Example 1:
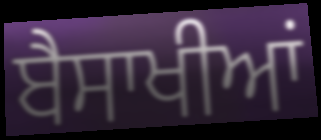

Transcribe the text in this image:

ਬੈਸਾਖੀਆਂ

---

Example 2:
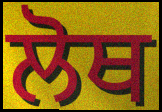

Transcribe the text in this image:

ਲੋਥ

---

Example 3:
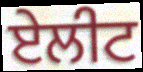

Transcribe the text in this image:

ਏਲੀਟ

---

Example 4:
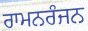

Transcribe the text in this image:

ਰਾਮਨਰੰਜਨ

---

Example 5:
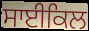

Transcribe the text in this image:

ਸਾਈਕਿਲ